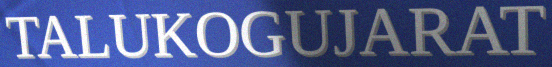
TALUKOGUJARAT